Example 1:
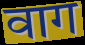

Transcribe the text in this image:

वाग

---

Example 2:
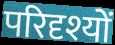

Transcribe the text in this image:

परिदृश्यों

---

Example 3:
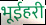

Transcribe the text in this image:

भूईहरी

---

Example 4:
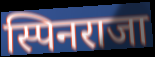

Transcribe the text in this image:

स्पिनराजा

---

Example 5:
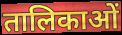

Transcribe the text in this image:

तालिकाओं